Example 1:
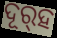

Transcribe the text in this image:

ଦୂର୍‌ହ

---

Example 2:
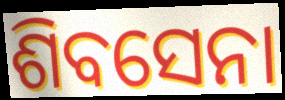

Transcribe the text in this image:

ଶିବସେନା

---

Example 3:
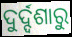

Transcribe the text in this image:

ଦୁର୍ଦ୍ଦଶାରୁ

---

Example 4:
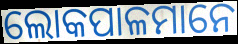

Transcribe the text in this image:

ଲୋକପାଳମାନେ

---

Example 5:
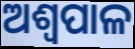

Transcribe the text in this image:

ଅଶ୍ୱପାଳ